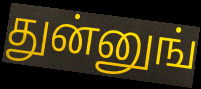
துன்னுங்